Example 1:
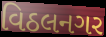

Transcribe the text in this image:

વિઠલનગર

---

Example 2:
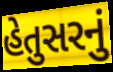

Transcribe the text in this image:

હેતુસરનું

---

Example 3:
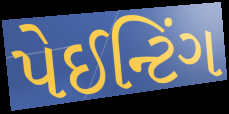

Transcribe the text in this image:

પેઈન્ટિંગ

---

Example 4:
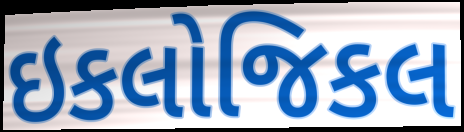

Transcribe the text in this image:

ઇકલોજિકલ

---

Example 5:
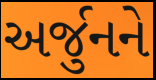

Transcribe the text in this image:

અર્જુનને